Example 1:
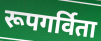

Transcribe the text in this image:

रूपगर्विता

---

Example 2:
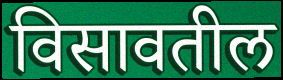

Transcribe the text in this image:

विसावतील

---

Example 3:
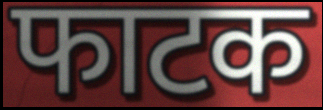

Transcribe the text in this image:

फाटक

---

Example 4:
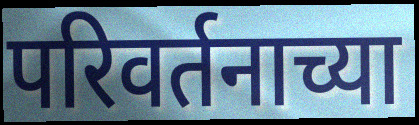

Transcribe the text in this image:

परिवर्तनाच्या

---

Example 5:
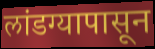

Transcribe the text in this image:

लांडग्यापासून